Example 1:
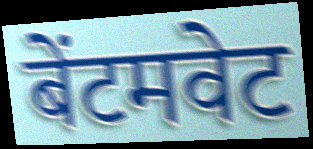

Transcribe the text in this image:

बेंटमवेट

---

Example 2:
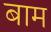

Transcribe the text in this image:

बाम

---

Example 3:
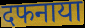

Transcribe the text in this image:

दफनाया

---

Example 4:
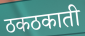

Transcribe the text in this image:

ठकठकाती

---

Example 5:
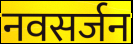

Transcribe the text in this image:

नवसर्जन